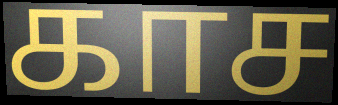
காச